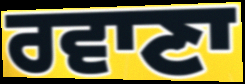
ਰਵਾਣਾ